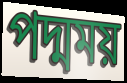
পদ্মময়